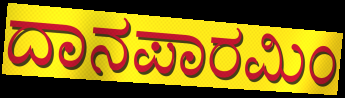
ದಾನಪಾರಮಿಂ